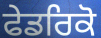
ਫੇਡਰਿਕੋ